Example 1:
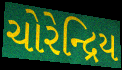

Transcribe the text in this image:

ચોરેન્દ્રિય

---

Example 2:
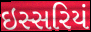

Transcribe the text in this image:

ઇસ્સરિયં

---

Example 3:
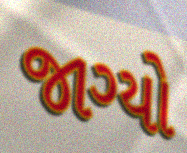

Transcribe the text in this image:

જાગ્યો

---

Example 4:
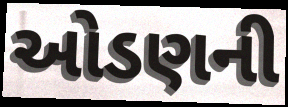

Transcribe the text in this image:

ઓડણની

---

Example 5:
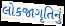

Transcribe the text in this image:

લોકજાગૃતિનું